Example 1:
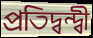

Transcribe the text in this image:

প্রতিদ্বন্দ্বী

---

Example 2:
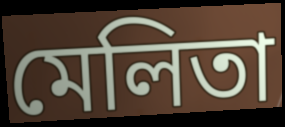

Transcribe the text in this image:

মেলিতা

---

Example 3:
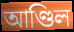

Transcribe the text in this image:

আণ্ডিল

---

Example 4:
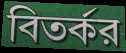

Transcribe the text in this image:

বিতর্কর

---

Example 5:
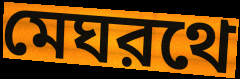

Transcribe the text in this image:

মেঘরথে